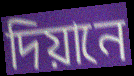
দিয়ানে